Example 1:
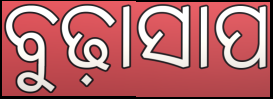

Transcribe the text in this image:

ବୁଢ଼ାସାପ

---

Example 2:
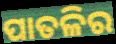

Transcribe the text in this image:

ପାତଳିର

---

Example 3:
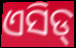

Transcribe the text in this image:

ଏସିଡ୍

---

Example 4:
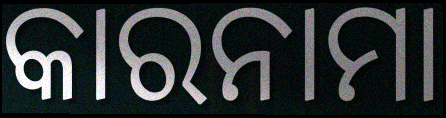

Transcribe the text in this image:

କାରନାମା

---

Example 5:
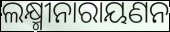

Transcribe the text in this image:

ଲକ୍ଷ୍ମୀନାରାୟଣନ